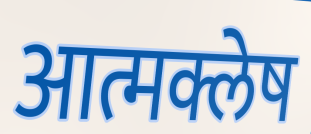
आत्मक्लेष